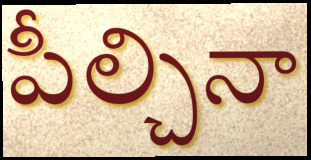
పీల్చినా